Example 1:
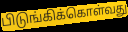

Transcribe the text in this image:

பிடுங்கிக்கொள்வது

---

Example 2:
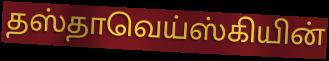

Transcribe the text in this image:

தஸ்தாவெய்ஸ்கியின்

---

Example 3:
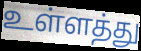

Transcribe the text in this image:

உள்ளத்து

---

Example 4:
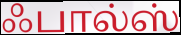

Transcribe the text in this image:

ஃபால்ஸ்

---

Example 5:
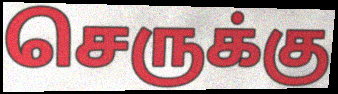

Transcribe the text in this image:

செருக்கு